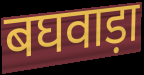
बघवाड़ा